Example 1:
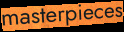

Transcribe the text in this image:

masterpieces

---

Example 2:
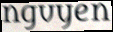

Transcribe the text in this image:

nguyen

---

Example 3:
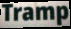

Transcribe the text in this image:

Tramp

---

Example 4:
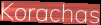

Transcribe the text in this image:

Korachas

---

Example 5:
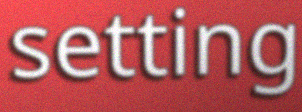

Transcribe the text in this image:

setting